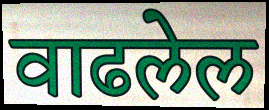
वाढलेल